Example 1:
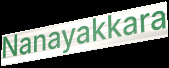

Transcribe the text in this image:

Nanayakkara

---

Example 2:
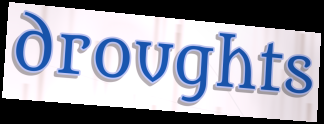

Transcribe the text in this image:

droughts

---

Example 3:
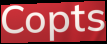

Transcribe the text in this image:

Copts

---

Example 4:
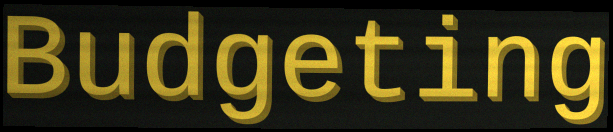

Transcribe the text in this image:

Budgeting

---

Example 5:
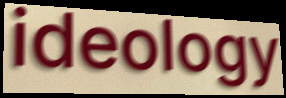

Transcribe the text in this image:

ideology